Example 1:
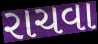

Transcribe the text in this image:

રાચવા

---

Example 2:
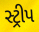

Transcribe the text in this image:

સ્ટ્રીપ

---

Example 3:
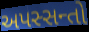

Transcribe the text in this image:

અપસ્સન્તો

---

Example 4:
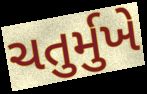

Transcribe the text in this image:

ચતુર્મુખે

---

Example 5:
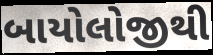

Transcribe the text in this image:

બાયોલોજીથી